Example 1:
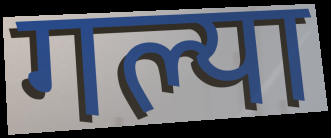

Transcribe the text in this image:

गल्या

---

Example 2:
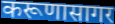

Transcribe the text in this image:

करूणासागर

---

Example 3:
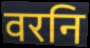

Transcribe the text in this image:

वरनि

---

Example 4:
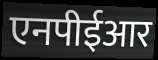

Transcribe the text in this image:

एनपीईआर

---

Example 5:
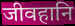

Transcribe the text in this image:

जीवहानि